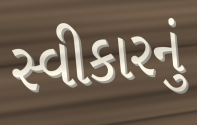
સ્વીકારનું